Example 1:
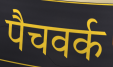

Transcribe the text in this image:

पैचवर्क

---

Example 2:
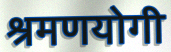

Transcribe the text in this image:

श्रमणयोगी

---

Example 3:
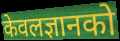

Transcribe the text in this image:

केवलज्ञानको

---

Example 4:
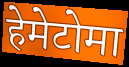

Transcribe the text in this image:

हेमेटोमा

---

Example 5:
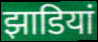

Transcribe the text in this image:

झाडियां